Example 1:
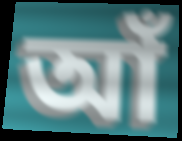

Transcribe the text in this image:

আঁ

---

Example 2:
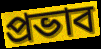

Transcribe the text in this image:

প্ৰভাব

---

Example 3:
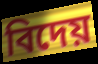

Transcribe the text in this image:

বিদেয়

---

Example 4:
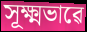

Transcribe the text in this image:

সূক্ষ্মভাৱে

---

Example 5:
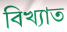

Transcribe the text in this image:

বিখ্যাত